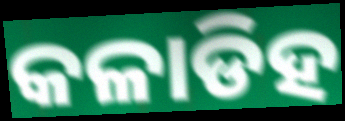
କଳାଡିହ